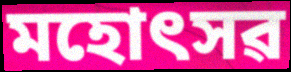
মহোৎসৱ